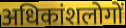
अधिकांशलोगों